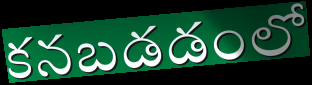
కనబడడంలో